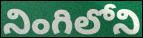
నింగిలోని